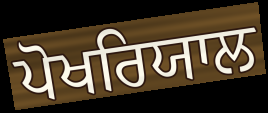
ਪੋਖਰਿਯਾਲ